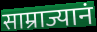
साम्राज्यानं